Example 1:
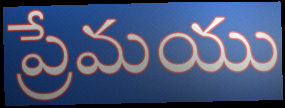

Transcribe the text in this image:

ప్రేమయు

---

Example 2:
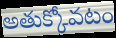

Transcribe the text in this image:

అతుక్కోవటం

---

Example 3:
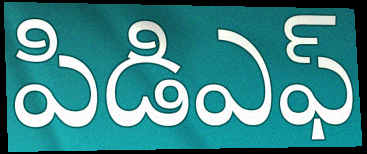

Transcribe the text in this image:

పిడిఎఫ్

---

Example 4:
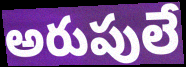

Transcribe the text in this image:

అరుపులే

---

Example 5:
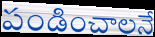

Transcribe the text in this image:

పండించాలనే